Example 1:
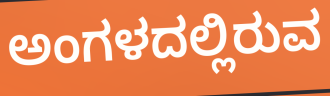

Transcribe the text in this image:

ಅಂಗಳದಲ್ಲಿರುವ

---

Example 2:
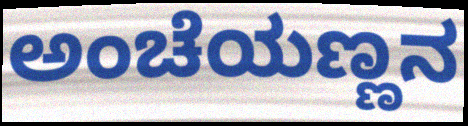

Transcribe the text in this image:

ಅಂಚೆಯಣ್ಣನ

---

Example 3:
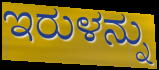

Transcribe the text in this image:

ಇರುಳನ್ನು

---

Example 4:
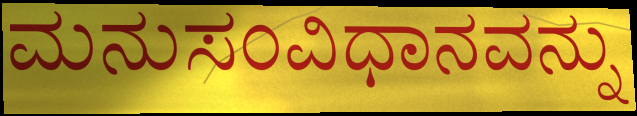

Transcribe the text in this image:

ಮನುಸಂವಿಧಾನವನ್ನು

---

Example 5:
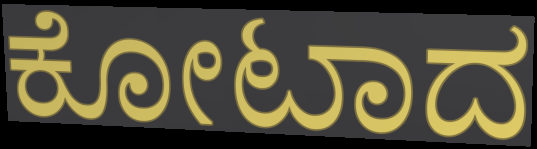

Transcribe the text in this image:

ಕೋಟಾದ